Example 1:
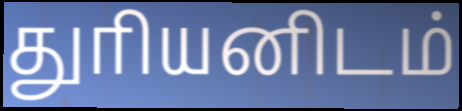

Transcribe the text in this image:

துரியனிடம்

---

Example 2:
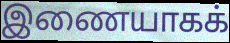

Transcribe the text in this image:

இணையாகக்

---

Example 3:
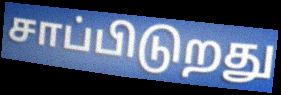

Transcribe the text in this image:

சாப்பிடுறது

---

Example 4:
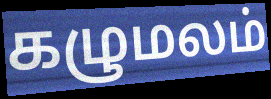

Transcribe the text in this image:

கழுமலம்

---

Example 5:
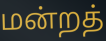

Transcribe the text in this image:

மன்றத்